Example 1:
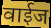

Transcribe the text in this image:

वाईज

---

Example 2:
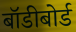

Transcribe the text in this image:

बॉडीबोर्ड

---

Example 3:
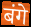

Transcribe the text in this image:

बंगे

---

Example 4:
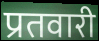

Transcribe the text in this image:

प्रतवारी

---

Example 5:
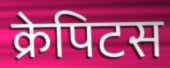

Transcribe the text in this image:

क्रेपिटस